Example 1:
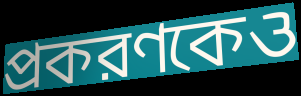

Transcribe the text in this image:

প্রকরণকেও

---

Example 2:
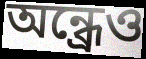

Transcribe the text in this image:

অন্ধ্রেও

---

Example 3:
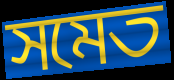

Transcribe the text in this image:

সমেত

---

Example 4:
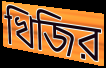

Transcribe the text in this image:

খিজির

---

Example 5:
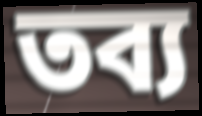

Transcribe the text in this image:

তব্য